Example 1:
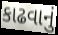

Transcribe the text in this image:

કાઢવાનું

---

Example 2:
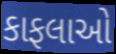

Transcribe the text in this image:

કાફલાઓ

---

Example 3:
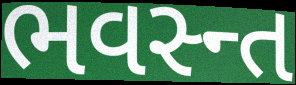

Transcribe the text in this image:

ભવસ્ન્ત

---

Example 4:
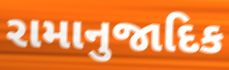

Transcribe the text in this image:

રામાનુજાદિક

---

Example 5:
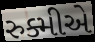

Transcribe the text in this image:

રુક્મીએ